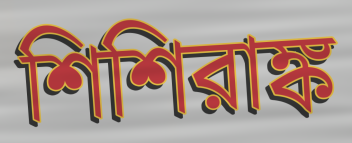
শিশিরাঙ্ক